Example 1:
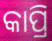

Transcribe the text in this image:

କାପ୍ରି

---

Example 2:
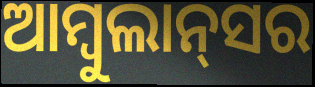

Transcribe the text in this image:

ଆମ୍ବୁଲାନ୍‌ସର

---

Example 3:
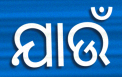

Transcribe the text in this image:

ଯାଉଁ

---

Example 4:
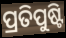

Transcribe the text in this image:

ପ୍ରତିପୁଷ୍ଟି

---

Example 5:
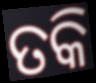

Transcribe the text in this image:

ତକି